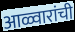
आळ्वारांची